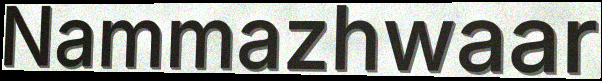
Nammazhwaar